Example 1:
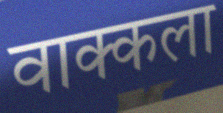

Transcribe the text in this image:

वाक्कला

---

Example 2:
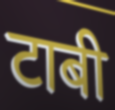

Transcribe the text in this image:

टाबी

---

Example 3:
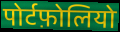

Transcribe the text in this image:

पोर्टफ़ोलियो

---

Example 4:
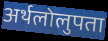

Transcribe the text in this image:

अर्थलोलुपता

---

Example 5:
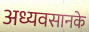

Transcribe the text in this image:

अध्यवसानके